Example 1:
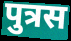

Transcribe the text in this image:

पुत्रस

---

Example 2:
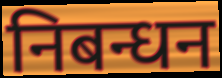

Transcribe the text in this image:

निबन्धन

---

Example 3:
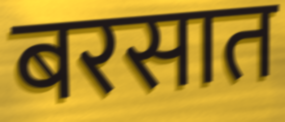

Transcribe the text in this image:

बरसात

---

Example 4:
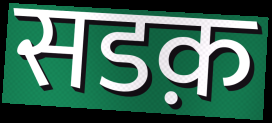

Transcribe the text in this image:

सडक़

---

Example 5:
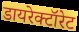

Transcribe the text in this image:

डायरेक्टॉरेट